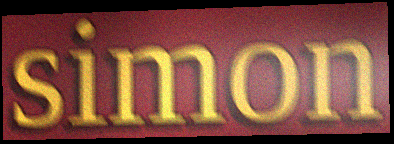
simon